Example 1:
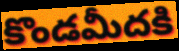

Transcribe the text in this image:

కొండమీదకి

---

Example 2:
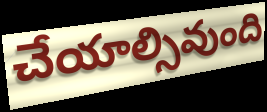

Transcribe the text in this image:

చేయాల్సివుంది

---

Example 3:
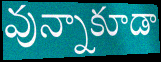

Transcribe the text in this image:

వున్నాకూడా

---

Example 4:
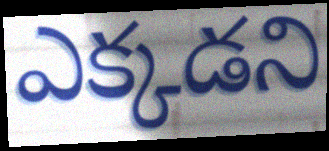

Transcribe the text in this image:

ఎక్కడని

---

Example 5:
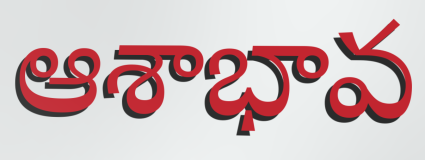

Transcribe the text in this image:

ఆశాభావ